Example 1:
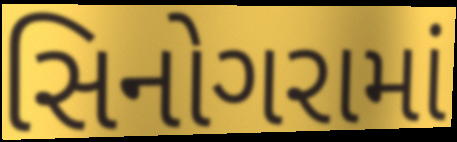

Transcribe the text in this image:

સિનોગરામાં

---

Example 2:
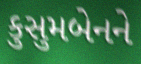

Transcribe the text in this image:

કુસુમબેનને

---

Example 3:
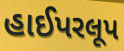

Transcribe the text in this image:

હાઈપરલૂપ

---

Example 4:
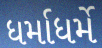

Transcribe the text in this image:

ધર્માધર્મે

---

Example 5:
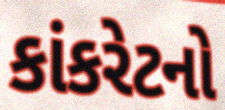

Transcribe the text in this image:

કાંકરેટનો